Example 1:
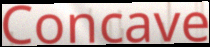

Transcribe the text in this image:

Concave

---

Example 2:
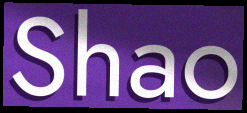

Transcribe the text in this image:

Shao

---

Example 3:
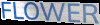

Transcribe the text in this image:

FLOWER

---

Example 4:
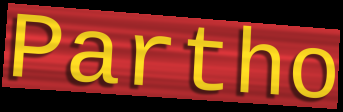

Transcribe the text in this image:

Partho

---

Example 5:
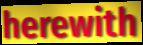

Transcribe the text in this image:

herewith